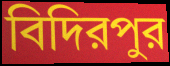
বিদিরপুর